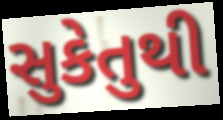
સુકેતુથી